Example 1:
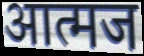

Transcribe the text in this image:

आत्मज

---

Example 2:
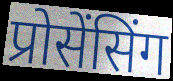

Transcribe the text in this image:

प्रोसेंसिंग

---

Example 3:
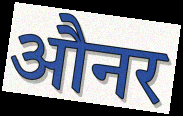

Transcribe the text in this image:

औनर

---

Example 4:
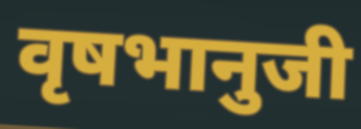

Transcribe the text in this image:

वृषभानुजी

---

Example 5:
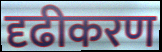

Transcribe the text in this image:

दृढीकरण